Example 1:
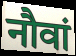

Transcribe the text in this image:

नौवां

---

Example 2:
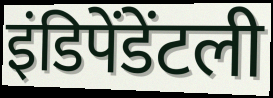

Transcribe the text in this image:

इंडिपेंडेंटली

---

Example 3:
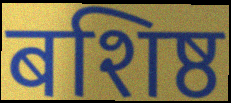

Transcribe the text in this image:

बशिष्ठ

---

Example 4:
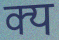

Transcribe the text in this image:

क्य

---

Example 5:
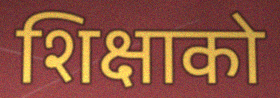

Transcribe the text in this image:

शिक्षाको